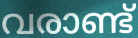
വരാണ്ട്